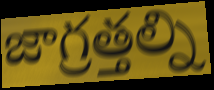
జాగ్రత్తల్ని